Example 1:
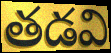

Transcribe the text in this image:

తడవి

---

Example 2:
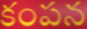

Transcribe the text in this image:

కంపన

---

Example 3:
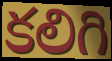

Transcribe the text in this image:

కలిగి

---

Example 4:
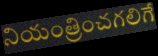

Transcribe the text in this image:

నియంత్రించగలిగే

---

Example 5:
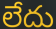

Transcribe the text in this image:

లేదు